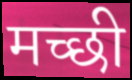
मच्छी